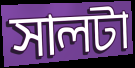
সালটা